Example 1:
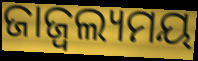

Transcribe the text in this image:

ଜାଜ୍ୱଲ୍ୟମୟ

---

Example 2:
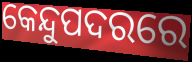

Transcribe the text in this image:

କେନ୍ଦୁପଦରରେ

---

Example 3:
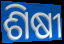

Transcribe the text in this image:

ଶିଷୀ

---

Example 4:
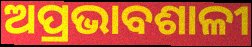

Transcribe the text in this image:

ଅପ୍ରଭାବଶାଳୀ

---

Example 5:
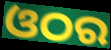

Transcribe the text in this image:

ଓଠର